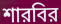
শারবির